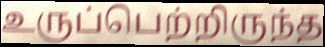
உருப்பெற்றிருந்த